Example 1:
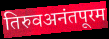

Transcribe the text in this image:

तिरुवअनंतपूरम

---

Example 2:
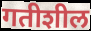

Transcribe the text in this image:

गतीशील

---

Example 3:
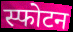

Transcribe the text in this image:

स्फोटन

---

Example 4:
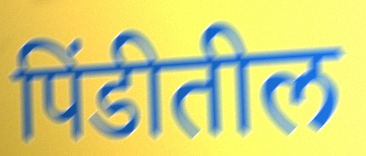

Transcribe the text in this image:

पिंडीतील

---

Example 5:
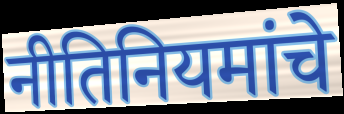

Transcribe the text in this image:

नीतिनियमांचे